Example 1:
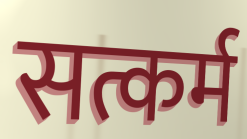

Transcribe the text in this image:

सत्कर्म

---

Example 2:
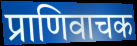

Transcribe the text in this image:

प्राणिवाचक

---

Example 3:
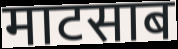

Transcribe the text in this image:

माटसाब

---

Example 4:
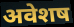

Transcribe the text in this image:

अवेशष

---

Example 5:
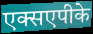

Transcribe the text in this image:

एक्सएपीके